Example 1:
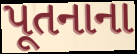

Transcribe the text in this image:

પૂતનાના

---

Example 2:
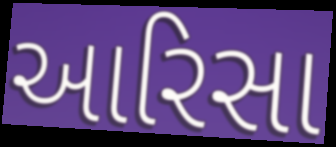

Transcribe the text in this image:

આરિસા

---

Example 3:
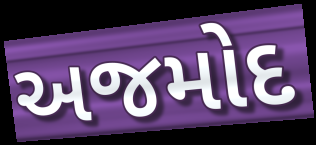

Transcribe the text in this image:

અજમોદ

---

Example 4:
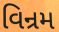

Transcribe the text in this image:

વિન્રમ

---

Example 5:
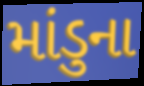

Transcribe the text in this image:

માંડુના